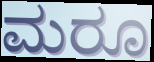
ಮರೂ